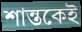
শান্তকেই